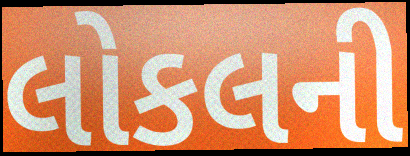
લોકલની